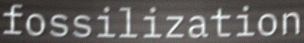
fossilization